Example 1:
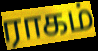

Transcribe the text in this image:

ராகம்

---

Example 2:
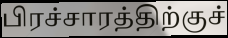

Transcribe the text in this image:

பிரச்சாரத்திற்குச்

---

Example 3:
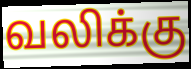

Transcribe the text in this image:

வலிக்கு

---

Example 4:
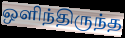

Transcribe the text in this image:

ஒளிந்திருந்த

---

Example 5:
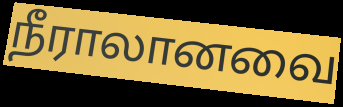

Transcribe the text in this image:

நீராலானவை